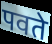
पवते